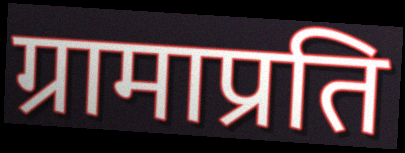
ग्रामाप्रति